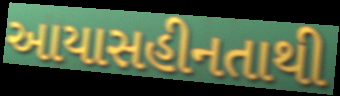
આયાસહીનતાથી